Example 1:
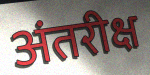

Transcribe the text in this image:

अंतरीक्ष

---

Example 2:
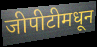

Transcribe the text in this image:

जीपीटीमधून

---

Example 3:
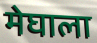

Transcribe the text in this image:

मेघाला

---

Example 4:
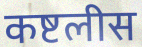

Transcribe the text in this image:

कष्टलीस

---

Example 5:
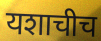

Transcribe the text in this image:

यशाचीच